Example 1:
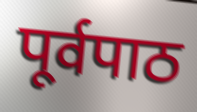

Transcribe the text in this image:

पूर्वपाठ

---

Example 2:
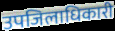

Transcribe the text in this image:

उपजिलाधिकारी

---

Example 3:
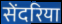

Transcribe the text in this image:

सेंदरिया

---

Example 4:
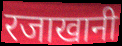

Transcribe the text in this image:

रजाखानी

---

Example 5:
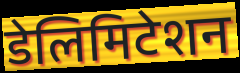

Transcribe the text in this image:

डेलिमिटेशन